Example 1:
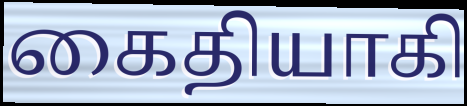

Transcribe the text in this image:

கைதியாகி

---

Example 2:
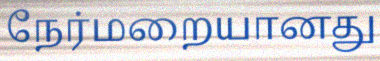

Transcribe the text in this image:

நேர்மறையானது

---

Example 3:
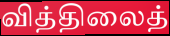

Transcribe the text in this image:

வித்திலைத்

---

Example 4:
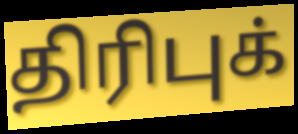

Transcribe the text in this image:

திரிபுக்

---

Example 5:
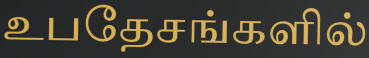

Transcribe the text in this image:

உபதேசங்களில்